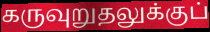
கருவுறுதலுக்குப்